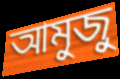
আমুজু